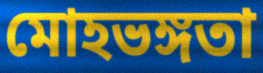
মোহভঙ্গতা